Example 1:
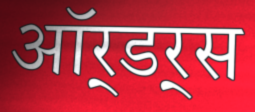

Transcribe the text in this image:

ऑर्डर्स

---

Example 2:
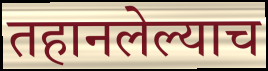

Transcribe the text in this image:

तहानलेल्याच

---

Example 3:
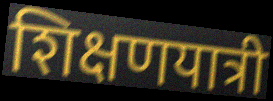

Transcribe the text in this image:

शिक्षणयात्री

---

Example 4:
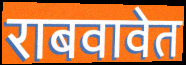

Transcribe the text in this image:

राबवावेत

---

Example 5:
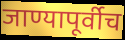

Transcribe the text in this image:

जाण्यापूर्वीच